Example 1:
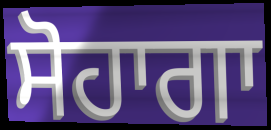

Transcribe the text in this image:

ਸੋਹਾਗਾ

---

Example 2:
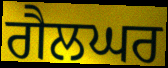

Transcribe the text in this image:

ਗੈਲਘਰ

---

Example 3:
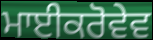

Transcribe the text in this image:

ਮਾਈਕਰੋਵੇਵ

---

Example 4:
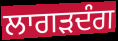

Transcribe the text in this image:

ਲਾਗੜਦੰਗ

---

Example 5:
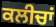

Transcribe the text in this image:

ਕਲੀਚਾਂ